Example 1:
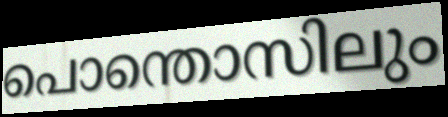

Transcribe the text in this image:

പൊന്തൊസിലും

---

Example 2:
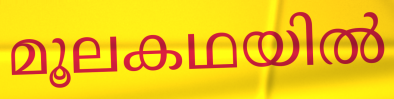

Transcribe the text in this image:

മൂലകഥയിൽ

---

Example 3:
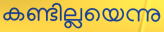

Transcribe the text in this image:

കണ്ടില്ലയെന്നു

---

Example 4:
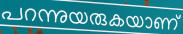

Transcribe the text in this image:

പറന്നുയരുകയാണ്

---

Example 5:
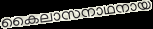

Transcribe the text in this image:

കൈലാസനാഥനായ